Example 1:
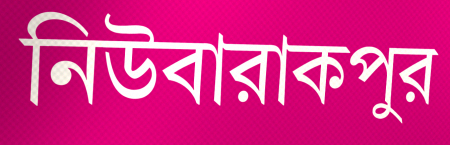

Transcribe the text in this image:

নিউবারাকপুর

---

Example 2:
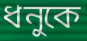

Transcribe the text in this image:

ধনুকে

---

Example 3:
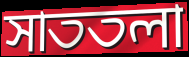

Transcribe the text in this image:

সাততলা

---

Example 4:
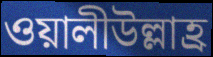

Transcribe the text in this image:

ওয়ালীউল্লাহ্র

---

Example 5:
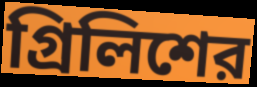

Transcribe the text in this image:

গ্রিলিশের